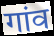
गांव